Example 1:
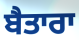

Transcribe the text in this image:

ਬੈਤਾਰਾ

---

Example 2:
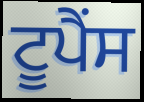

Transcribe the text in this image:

ਟੂਪੈਂਸ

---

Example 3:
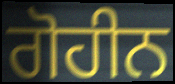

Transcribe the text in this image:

ਗੋਹੀਨ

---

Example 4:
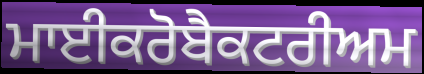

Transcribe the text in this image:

ਮਾਈਕਰੋਬੈਕਟਰੀਅਮ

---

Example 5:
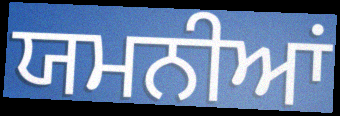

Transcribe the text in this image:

ਯਮਨੀਆਂ